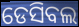
ଡେସିବଲ